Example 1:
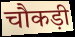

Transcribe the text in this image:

चौकड़ी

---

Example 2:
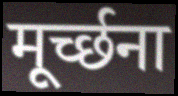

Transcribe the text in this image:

मूर्च्छना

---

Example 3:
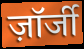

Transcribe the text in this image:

ज़ॉर्जी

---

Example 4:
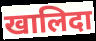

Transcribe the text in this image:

खालिदा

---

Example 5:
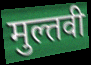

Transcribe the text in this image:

मुल्तवी